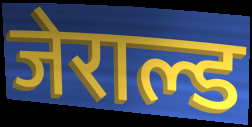
जेराल्ड